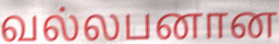
வல்லபனான